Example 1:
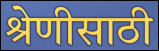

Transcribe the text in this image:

श्रेणीसाठी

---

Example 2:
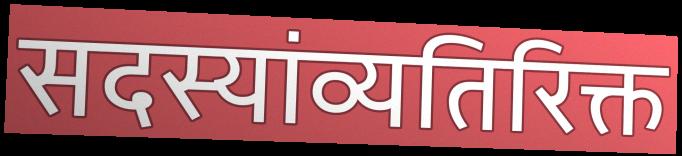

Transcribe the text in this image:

सदस्यांव्यतिरिक्त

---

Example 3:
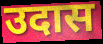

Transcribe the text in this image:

उदास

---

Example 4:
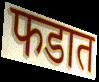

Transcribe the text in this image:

फडात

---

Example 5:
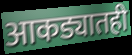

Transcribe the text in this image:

आकड्यातही